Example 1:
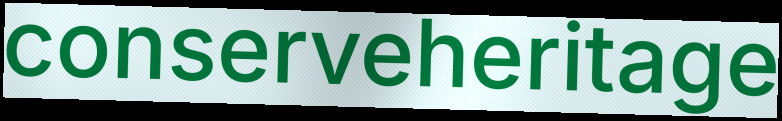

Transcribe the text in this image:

conserveheritage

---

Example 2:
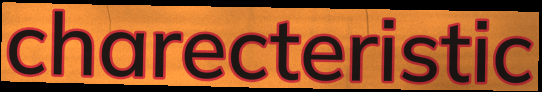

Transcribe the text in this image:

charecteristic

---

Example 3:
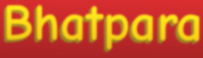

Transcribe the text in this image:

Bhatpara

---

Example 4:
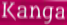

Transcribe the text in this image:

Kanga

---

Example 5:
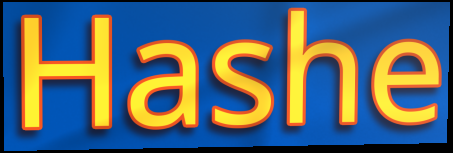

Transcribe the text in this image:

Hashe